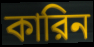
কারিন